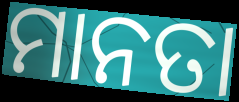
ମାନତା